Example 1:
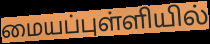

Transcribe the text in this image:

மையப்புள்ளியில்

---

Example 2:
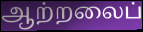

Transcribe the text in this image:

ஆற்றலைப்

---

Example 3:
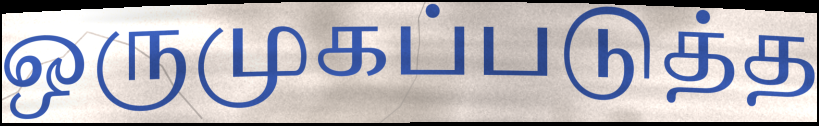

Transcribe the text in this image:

ஒருமுகப்படுத்த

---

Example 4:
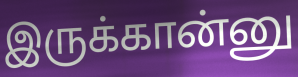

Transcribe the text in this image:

இருக்கான்னு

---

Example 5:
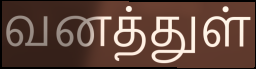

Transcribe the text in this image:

வனத்துள்